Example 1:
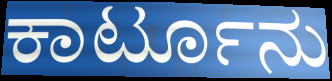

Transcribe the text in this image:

ಕಾರ್ಟೂನು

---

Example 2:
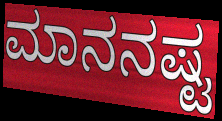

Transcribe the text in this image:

ಮಾನನಷ್ಟ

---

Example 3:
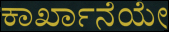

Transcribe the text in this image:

ಕಾರ್ಖಾನೆಯೇ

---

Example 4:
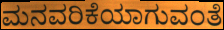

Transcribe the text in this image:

ಮನವರಿಕೆಯಾಗುವಂತೆ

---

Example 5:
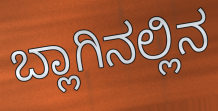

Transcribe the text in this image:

ಬ್ಲಾಗಿನಲ್ಲಿನ